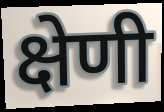
क्षेणी